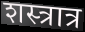
शस्त्रात्र